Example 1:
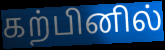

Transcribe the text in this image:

கற்பினில்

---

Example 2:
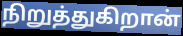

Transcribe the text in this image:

நிறுத்துகிறான்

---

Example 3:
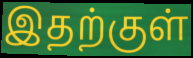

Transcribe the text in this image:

இதற்குள்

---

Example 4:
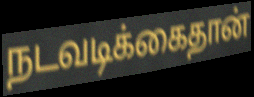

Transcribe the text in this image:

நடவடிக்கைதான்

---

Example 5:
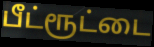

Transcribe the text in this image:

பீட்ரூட்டை